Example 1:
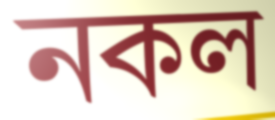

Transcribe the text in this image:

নকল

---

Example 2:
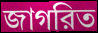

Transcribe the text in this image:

জাগরিত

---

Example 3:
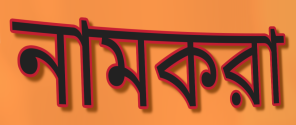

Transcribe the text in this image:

নামকরা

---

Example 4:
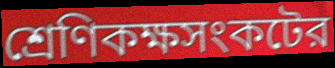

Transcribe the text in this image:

শ্রেণিকক্ষসংকটের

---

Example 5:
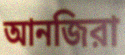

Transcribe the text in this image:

আনজিরা